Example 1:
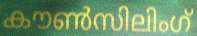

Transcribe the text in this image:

കൗൺസിലിംഗ്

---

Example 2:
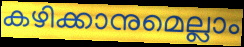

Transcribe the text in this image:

കഴിക്കാനുമെല്ലാം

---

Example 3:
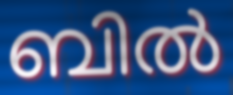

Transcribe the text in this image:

ബിൽ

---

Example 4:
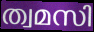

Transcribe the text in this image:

ത്വമസി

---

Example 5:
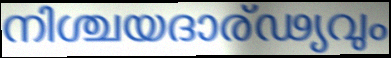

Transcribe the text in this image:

നിശ്ചയദാര്ഢ്യവും